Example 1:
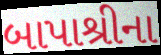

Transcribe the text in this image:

બાપાશ્રીના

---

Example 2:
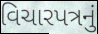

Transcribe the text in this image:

વિચારપત્રનું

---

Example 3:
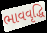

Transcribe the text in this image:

ભાવવૃદ્ધિ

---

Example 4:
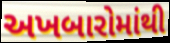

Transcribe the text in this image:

અખબારોમાંથી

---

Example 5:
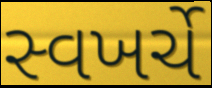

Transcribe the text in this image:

સ્વખર્ચે